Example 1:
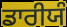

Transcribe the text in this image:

ਡਾਰੀਯੰ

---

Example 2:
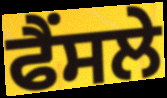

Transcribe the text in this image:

ਫੈਂਸਲੇ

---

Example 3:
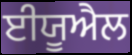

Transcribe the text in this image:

ਈਯੂਐਲ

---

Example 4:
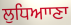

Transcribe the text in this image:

ਲੁਧਿਆਾਣਾ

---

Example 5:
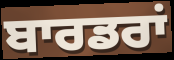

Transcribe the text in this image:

ਬਾਰਡਰਾਂ